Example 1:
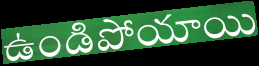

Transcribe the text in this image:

ఉండిపోయాయి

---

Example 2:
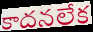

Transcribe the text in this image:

కాదనలేక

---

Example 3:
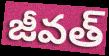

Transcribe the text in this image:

జీవత్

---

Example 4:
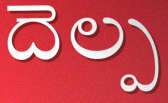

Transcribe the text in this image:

దెల్ప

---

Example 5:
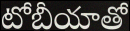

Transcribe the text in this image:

టోబీయాతో